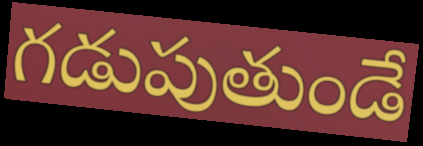
గడుపుతుండే